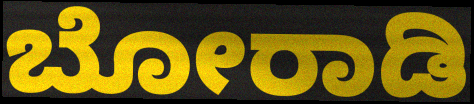
ಬೋರಾಡಿ